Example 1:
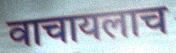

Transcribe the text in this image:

वाचायलाच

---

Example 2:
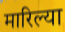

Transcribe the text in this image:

मारिल्या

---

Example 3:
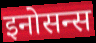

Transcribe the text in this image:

इनोसन्स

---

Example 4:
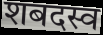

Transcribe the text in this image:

शबदस्व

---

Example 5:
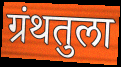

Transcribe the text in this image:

ग्रंथतुला